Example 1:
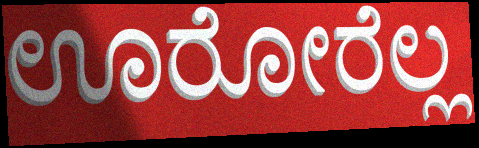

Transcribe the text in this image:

ಊರೋರೆಲ್ಲ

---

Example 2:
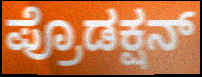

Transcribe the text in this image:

ಪ್ರೊಡಕ್ಷನ್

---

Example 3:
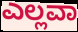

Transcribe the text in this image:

ಎಲ್ಲವಾ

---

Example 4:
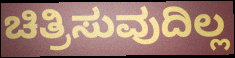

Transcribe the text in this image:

ಚಿತ್ರಿಸುವುದಿಲ್ಲ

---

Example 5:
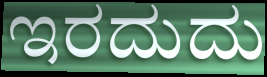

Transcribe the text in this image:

ಇರದುದು